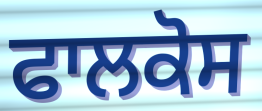
ਫਾਲਕੋਸ